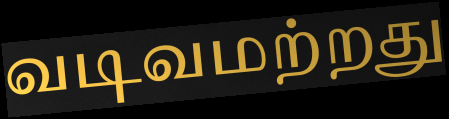
வடிவமற்றது